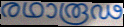
രഥാരൂഢ